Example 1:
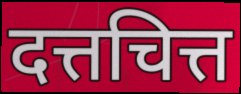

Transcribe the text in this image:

दत्तचित्त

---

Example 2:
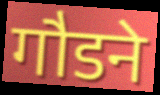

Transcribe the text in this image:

गौडने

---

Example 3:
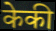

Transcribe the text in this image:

केकी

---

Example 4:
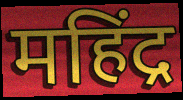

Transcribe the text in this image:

महिंद्र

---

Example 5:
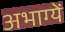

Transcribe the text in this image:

अभाग्यें